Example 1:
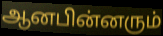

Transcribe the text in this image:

ஆனபின்னரும்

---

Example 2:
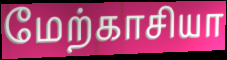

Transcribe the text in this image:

மேற்காசியா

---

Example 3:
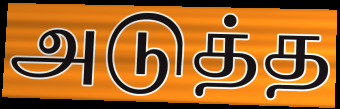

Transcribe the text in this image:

அடுத்த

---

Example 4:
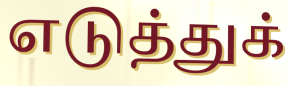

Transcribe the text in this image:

எடுத்துக்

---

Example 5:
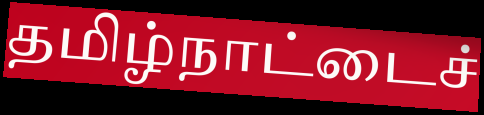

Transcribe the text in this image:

தமிழ்நாட்டைச்